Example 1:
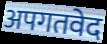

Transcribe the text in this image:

अपगतवेद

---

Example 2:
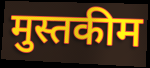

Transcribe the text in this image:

मुस्तकीम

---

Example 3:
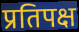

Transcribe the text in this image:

प्रतिपक्ष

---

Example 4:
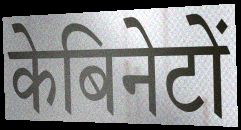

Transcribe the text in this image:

केबिनेटों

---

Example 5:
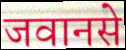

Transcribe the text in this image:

जवानसे